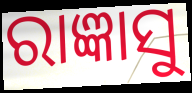
ରାଜ୍ଞାସୁ